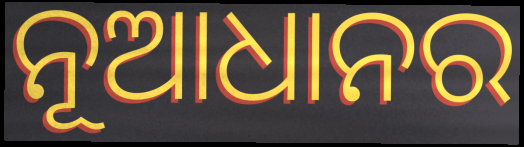
ନୂଆଧାନର